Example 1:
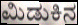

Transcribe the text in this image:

ಮಿಡುಕಿನ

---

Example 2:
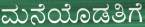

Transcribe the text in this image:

ಮನೆಯೊಡತಿಗೆ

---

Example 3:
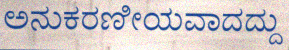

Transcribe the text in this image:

ಅನುಕರಣೀಯವಾದದ್ದು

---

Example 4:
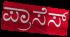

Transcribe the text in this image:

ಪ್ರಾಸೆಸ್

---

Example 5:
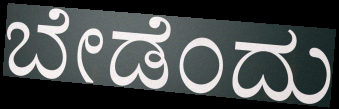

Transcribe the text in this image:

ಬೇಡೆಂದು